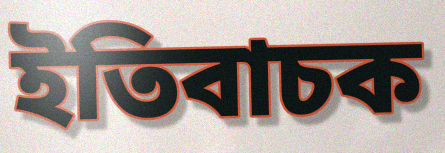
ইতিবাচক